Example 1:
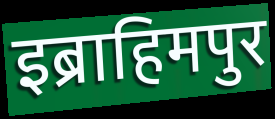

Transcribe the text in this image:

इब्राहिमपुर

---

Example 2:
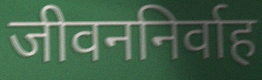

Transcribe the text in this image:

जीवननिर्वाह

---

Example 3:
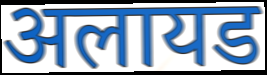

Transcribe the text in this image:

अलायड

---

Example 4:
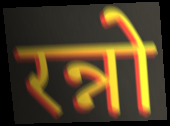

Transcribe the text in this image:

रन्नो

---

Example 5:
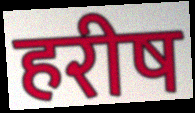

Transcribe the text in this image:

हरीष